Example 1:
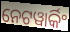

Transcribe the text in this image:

ନେଟୱାର୍କିଂ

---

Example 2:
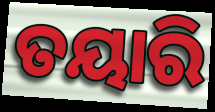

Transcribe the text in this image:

ତୟାରି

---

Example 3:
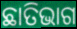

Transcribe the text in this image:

ଛାତିଭାଗ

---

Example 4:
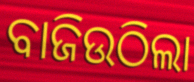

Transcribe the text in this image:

ବାଜିଉଠିଲା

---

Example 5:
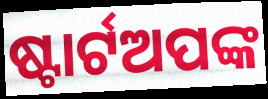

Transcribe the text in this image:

ଷ୍ଟାର୍ଟଅପଙ୍କ